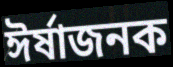
ঈর্ষাজনক